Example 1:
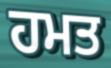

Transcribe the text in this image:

ਹਮਤ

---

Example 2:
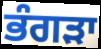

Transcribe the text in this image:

ਭੰਗੜਾ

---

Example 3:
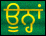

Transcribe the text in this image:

ਊਨ੍ਹਾਂ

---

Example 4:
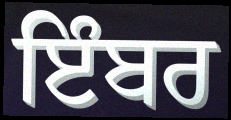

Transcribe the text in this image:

ਇੰਬਰ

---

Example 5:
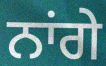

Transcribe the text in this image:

ਨਾਂਗੇ